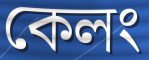
কেলং